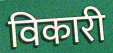
विकारी